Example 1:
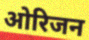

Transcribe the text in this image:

ओरिजन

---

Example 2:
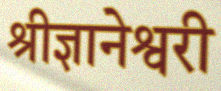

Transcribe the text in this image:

श्रीज्ञानेश्वरी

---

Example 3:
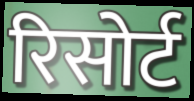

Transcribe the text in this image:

रिसोर्ट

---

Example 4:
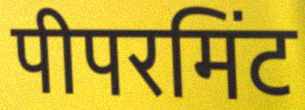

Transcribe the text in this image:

पीपरमिंट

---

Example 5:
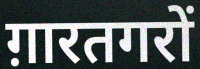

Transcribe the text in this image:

ग़ारतगरों